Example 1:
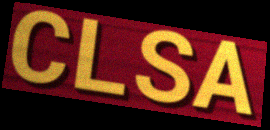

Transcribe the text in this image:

CLSA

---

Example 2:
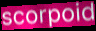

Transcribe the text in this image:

scorpoid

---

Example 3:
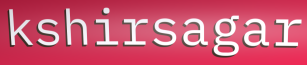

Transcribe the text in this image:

kshirsagar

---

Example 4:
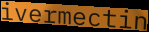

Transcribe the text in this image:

ivermectin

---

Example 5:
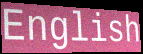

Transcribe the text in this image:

English